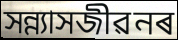
সন্ন্যাসজীৱনৰ